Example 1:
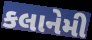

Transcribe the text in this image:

કલાનેમી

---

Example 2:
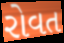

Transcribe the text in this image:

રોવત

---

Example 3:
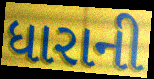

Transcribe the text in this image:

ધારાની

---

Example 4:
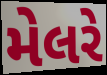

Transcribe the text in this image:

મેલરે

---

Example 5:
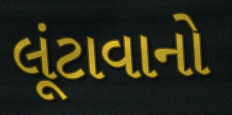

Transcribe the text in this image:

લૂંટાવાનો